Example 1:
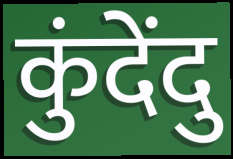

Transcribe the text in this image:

कुंदेंदु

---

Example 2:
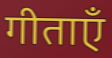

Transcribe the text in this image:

गीताएँ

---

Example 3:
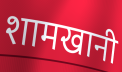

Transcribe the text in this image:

शामखानी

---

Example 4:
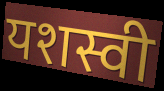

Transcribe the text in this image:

यशस्वी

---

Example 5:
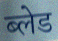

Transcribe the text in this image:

ब्लेड